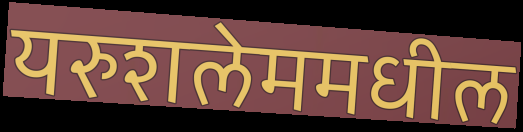
यरुशलेममधील